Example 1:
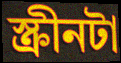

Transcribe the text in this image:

স্ক্রীনটা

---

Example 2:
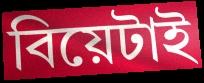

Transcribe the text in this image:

বিয়েটাই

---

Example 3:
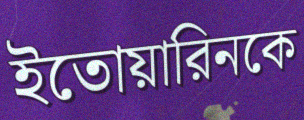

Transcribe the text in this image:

ইতোয়ারিনকে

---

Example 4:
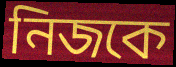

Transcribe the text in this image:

নিজকে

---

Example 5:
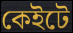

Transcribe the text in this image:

কেইটে